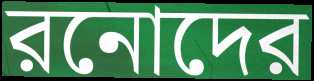
রনোদের